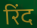
रिंद